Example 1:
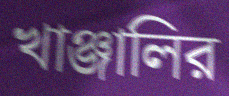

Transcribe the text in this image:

খাঞ্জালির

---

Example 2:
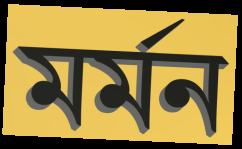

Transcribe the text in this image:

মর্মন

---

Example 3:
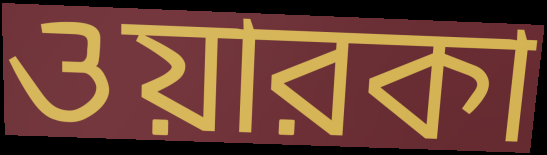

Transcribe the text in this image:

ওয়ারকা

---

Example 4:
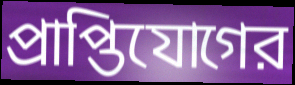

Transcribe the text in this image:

প্রাপ্তিযোগের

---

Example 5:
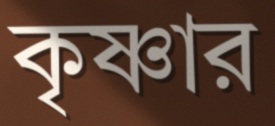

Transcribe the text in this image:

কৃষ্ণার